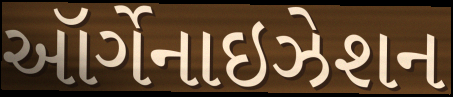
ઑર્ગેનાઇઝેશન